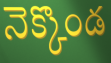
నెక్కొండ